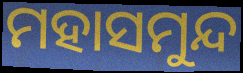
ମହାସମୁନ୍ଦ